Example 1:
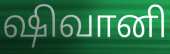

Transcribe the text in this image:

ஷிவானி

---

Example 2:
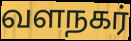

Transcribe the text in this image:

வளநகர்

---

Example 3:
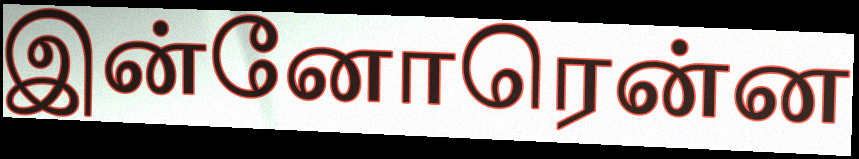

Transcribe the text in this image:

இன்னோரென்ன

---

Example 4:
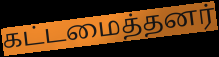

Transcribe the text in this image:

கட்டமைத்தனர்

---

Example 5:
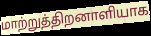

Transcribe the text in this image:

மாற்றுத்திறனாளியாக